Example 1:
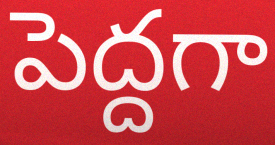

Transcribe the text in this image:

పెద్దగా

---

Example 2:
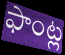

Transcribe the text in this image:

ఫాంట్ల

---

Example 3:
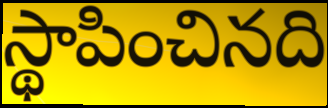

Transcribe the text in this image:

స్థాపించినది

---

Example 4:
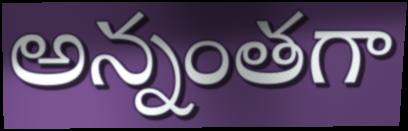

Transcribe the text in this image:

అన్నంతగా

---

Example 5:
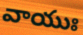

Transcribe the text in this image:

వాయుః